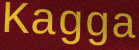
Kagga